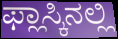
ಫ್ಲಾಸ್ಕಿನಲ್ಲಿ